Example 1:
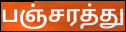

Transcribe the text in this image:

பஞ்சரத்து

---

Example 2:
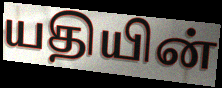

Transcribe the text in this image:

யதியின்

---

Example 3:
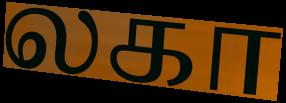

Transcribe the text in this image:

லகா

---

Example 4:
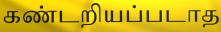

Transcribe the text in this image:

கண்டறியப்படாத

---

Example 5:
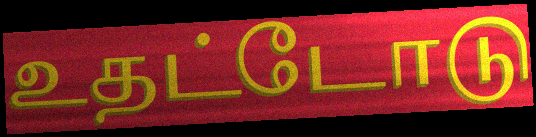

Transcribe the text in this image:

உதட்டோடு